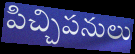
పిచ్చిపనులు